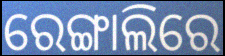
ରେଙ୍ଗାଲିରେ